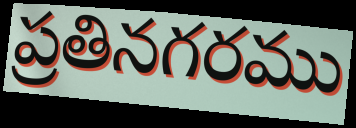
ప్రతినగరము